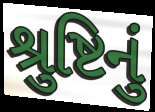
શ્રુષ્ટિનું